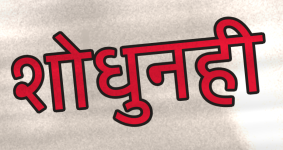
शोधुनही